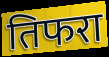
तिफरा